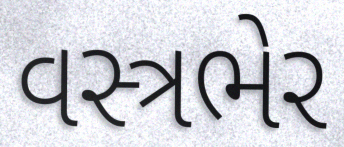
વસ્ત્રભેર